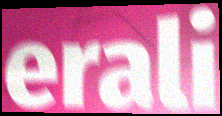
erali